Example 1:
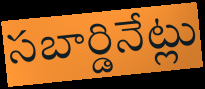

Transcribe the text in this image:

సబార్డినేట్లు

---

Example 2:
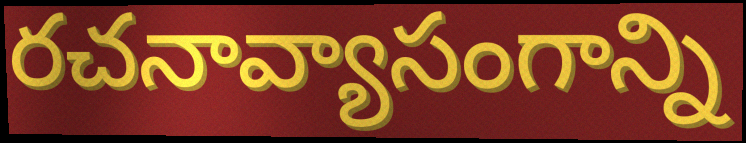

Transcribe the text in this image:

రచనావ్యాసంగాన్ని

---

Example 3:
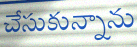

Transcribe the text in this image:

చేసుకున్నాను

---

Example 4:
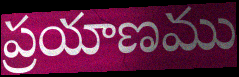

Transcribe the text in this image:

ప్రయాణము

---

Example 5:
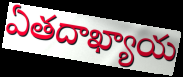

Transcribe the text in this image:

ఏతదాఖ్యాయ